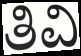
ತಿವಿ